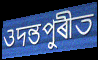
ওদন্তপুৰীত